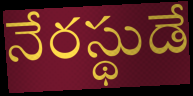
నేరస్థుడే